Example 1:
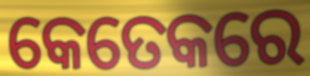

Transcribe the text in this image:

କେତେକରେ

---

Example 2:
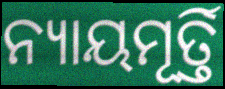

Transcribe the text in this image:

ନ୍ୟାୟମୂର୍ତ୍ତି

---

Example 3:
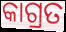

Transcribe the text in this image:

କାଗ୍ରତ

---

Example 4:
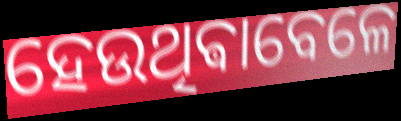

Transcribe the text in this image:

ହେଉଥିଵାବେଳେ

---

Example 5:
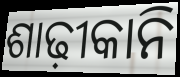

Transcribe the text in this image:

ଶାଢ଼ୀକାନି